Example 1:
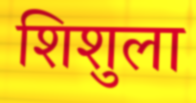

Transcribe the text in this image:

शिशुला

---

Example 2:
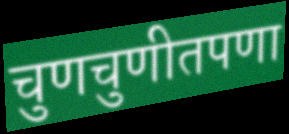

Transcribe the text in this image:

चुणचुणीतपणा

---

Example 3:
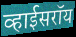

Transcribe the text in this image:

व्हाईसरॉय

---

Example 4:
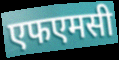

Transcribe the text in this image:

एफएमसी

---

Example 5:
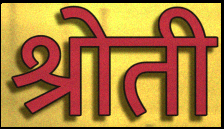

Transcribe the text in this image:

श्रोती